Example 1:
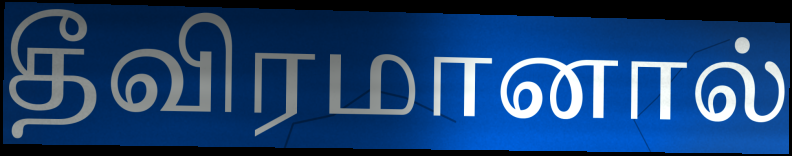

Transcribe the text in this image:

தீவிரமானால்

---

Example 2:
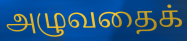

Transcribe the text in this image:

அழுவதைக்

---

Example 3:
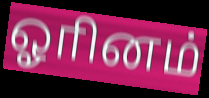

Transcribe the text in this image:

ஓரினம்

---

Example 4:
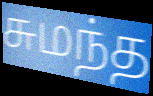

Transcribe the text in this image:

சுமந்த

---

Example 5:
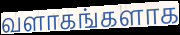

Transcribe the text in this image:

வளாகங்களாக